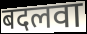
बदलवा